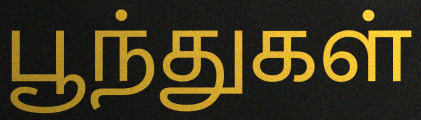
பூந்துகள்